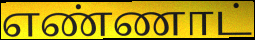
எண்ணாட்